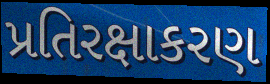
પ્રતિરક્ષાકરણ